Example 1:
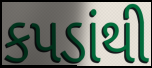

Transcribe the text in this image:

કપડાંથી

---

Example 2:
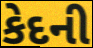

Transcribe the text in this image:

કેદની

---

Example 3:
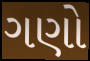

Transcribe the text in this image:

ગણો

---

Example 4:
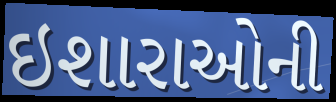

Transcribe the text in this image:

ઇશારાઓની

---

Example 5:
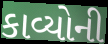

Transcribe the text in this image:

કાવ્યોની